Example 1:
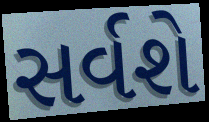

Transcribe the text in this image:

સર્વશે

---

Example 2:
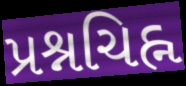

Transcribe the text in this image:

પ્રશ્નચિહ્ન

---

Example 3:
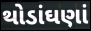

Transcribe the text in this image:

થોડાંઘણાં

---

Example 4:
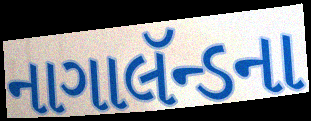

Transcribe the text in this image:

નાગાલૅન્ડના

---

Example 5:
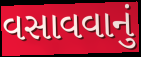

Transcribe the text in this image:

વસાવવાનું